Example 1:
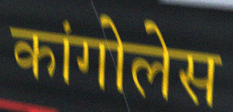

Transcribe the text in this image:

कांगोलेस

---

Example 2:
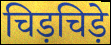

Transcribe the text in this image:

चिड़चिड़े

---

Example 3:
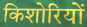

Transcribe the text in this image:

किशोरियों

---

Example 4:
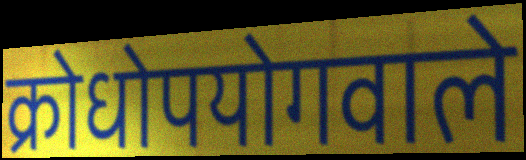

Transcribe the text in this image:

क्रोधोपयोगवाले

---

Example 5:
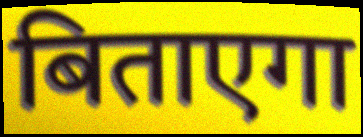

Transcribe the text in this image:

बिताएगा